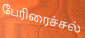
பேரிரைச்சல்